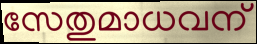
സേതുമാധവന്